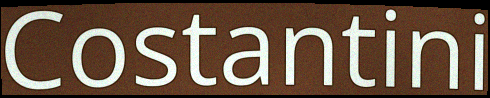
Costantini